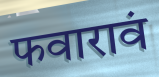
फवारावं